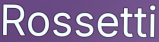
Rossetti